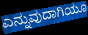
ಎನ್ನುವುದಾಗಿಯೂ